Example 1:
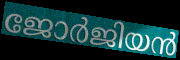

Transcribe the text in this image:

ജോർജിയൻ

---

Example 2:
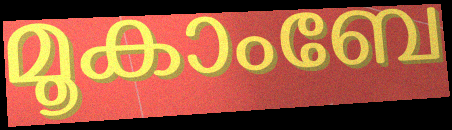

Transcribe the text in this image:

മൂകാംബേ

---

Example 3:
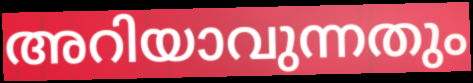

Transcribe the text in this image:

അറിയാവുന്നതും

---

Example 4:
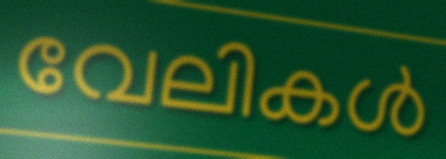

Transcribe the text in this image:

വേലികൾ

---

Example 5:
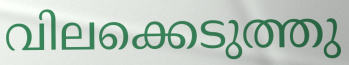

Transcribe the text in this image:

വിലക്കെടുത്തു